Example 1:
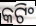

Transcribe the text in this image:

କଟିଂ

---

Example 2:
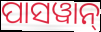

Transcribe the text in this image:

ପାସୱାନ୍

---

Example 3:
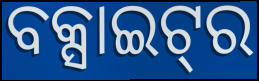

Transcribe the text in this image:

ବକ୍ସାଇଟ୍‌ର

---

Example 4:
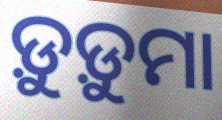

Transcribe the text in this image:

ଡ଼ୁଡ଼ୁମା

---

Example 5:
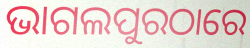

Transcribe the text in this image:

ଭାଗଲପୁରଠାରେ